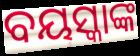
ବୟସ୍କାଙ୍କ